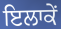
ਇਲਾਕੇਂ